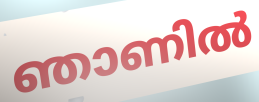
ഞാണിൽ